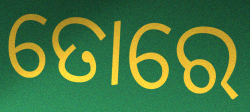
ତୋରେ